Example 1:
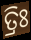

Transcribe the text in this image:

ତ୍ରିଃ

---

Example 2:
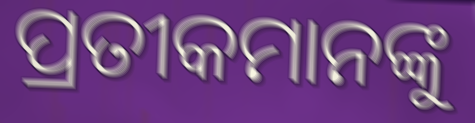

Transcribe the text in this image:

ପ୍ରତୀକମାନଙ୍କୁ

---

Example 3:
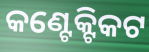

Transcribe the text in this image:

କଣ୍ଟେକ୍ଟିକଟ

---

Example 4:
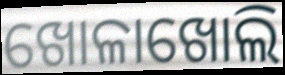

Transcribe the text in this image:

ଖୋଳାଖୋଲି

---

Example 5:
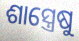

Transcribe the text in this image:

ଶାସ୍ତ୍ରେଷୁ